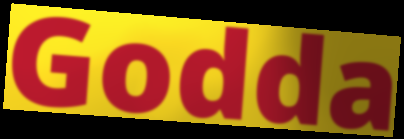
Godda